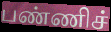
பண்ணிச்